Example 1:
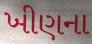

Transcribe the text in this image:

ખીણના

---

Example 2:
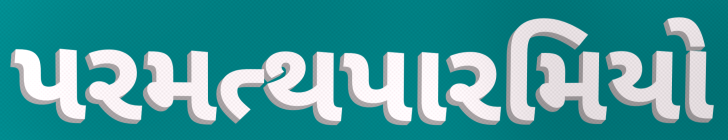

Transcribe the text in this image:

પરમત્થપારમિયો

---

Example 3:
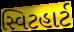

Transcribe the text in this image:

સ્વિટહાર્ટ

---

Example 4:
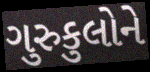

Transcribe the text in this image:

ગુરુકુલોને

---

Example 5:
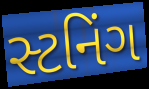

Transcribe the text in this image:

સ્ટનિંગ